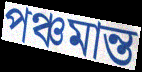
পঞ্চমান্ত